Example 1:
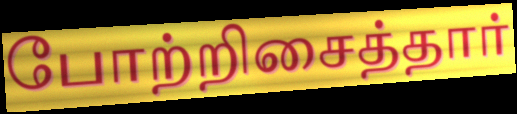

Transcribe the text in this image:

போற்றிசைத்தார்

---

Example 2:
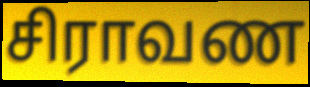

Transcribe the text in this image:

சிராவண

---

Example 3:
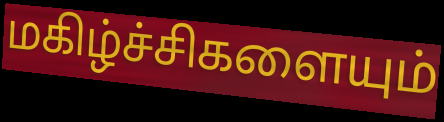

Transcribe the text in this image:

மகிழ்ச்சிகளையும்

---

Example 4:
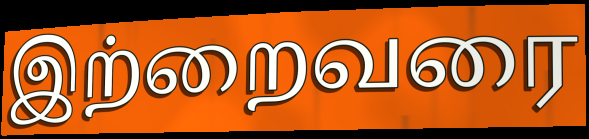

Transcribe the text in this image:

இற்றைவரை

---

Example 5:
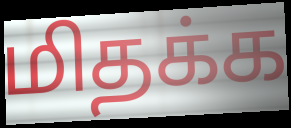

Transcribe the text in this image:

மிதக்க